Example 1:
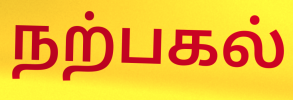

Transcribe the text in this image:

நற்பகல்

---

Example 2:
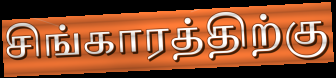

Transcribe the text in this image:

சிங்காரத்திற்கு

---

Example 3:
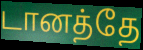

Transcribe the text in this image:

டானத்தே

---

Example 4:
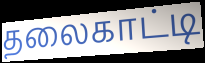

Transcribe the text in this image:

தலைகாட்டி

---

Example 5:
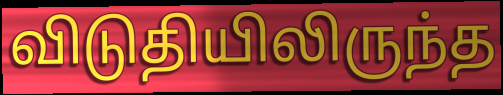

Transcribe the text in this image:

விடுதியிலிருந்த